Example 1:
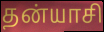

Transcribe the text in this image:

தன்யாசி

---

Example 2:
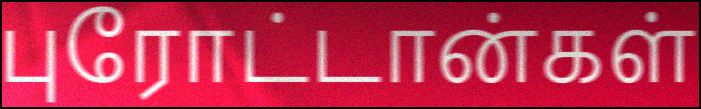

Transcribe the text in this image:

புரோட்டான்கள்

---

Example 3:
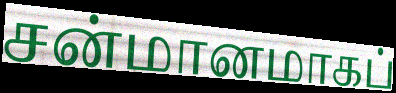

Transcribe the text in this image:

சன்மானமாகப்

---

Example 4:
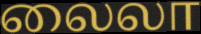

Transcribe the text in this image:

லைலா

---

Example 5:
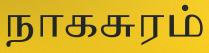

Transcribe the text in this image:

நாகசுரம்